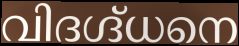
വിദഗ്ദ്ധനെ